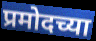
प्रमोदच्या